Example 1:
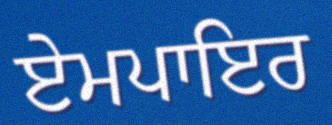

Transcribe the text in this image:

ਏਮਪਾਇਰ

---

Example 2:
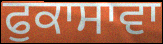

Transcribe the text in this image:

ਫੁਕਾਸਾਵਾ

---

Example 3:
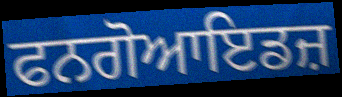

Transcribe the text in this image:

ਫਨਗੋਆਇਡਜ਼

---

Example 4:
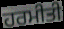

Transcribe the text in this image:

ਹਰਮੀਤੀ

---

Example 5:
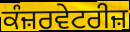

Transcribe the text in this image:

ਕੰਜ਼ਰਵੇਟਰੀਜ਼